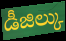
డీజిల్కు